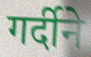
गर्दीने